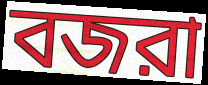
বজরা